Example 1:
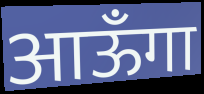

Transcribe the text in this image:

आऊँगा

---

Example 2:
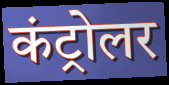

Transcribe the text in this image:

कंट्रोलर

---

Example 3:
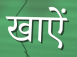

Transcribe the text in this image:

खाऐं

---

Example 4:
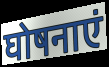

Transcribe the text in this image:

घोषनाएं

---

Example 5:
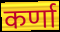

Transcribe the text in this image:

कर्णा